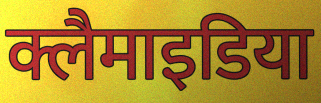
क्लैमाइडिया